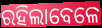
ରହିଲାବେଳେ